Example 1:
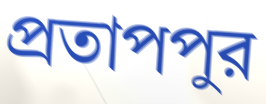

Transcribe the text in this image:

প্রতাপপুর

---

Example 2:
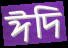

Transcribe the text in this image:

ঈদি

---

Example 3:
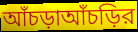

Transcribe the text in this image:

আঁচড়াআঁচড়ির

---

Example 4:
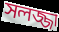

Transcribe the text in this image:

সলজ্জা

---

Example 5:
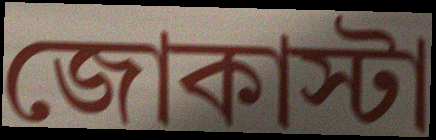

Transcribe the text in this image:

জোকাস্টা